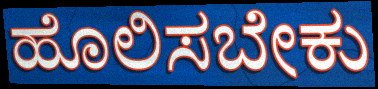
ಹೊಲಿಸಬೇಕು